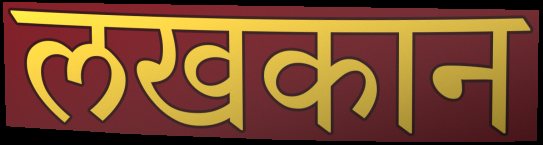
लखकान